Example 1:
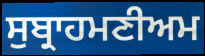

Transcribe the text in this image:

ਸੁਬ੍ਰਾਹਮਣੀਅਮ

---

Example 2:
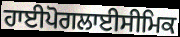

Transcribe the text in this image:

ਹਾਈਪੋਗਲਾਈਸੀਮਿਕ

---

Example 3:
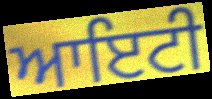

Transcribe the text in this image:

ਆਇਟੀ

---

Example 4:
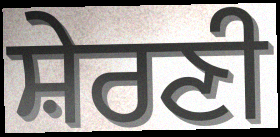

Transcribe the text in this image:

ਸ਼ੇਰਣੀ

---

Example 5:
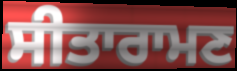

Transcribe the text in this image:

ਸੀਤਾਰਾਮਣ